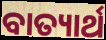
ବାତ୍ୟାର୍ଥ